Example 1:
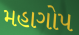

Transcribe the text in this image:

મહાગોપ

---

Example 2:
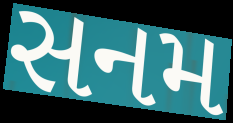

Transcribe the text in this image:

સનમ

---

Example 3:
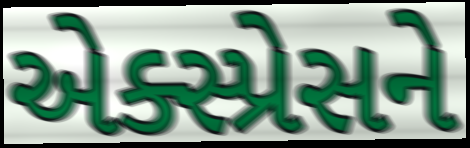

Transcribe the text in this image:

એક્સ્પ્રેસને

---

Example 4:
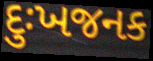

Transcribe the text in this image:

દુઃખજનક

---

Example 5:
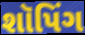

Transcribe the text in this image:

શૉપિંગ